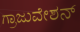
ಗ್ರಾಜುವೇಶನ್